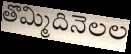
తొమ్మిదినెలల